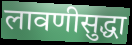
लावणीसुद्धा